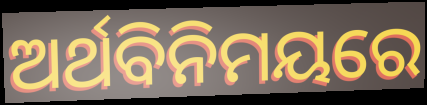
ଅର୍ଥବିନିମୟରେ